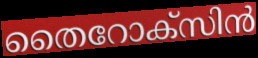
തൈറോക്സിൻ